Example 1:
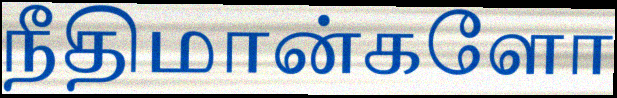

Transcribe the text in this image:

நீதிமான்களோ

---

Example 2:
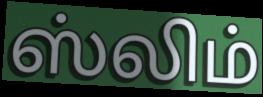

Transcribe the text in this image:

ஸ்லிம்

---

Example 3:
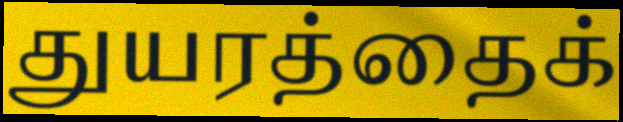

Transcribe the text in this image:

துயரத்தைக்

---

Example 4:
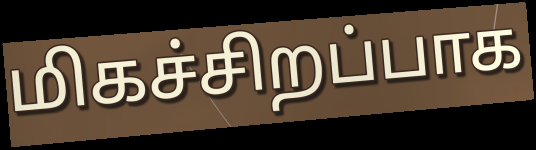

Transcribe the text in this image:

மிகச்சிறப்பாக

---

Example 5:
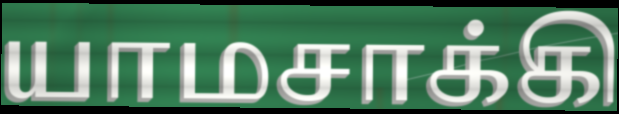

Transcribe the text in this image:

யாமசாக்கி